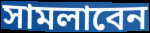
সামলাবেন